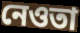
নেওতা